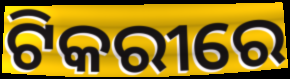
ଟିକରୀରେ